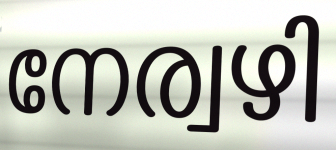
നേര്വഴി